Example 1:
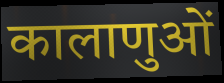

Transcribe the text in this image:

कालाणुओं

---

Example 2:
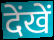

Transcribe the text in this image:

देंखें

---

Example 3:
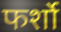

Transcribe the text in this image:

फर्शो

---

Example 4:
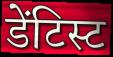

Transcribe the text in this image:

डेंटिस्ट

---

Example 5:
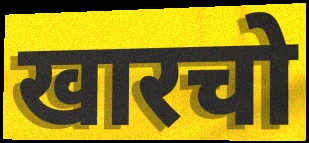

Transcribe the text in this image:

खारचो